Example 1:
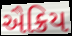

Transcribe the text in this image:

ઐક્રિય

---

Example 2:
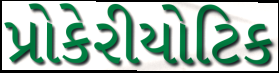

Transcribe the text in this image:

પ્રોકેરીયોટિક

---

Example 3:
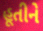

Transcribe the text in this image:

હૂતીને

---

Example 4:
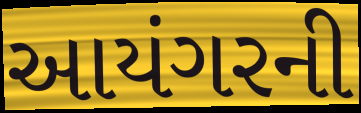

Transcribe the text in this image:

આયંગરની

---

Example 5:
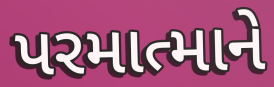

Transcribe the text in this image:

પરમાત્માને